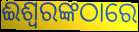
ଈଶ୍ୱରଙ୍କଠାରେ